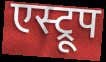
एस्ट्रूप